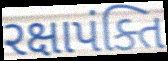
રક્ષાપંક્તિ